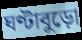
ঘণ্টাবুড়ো